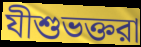
যীশুভক্তরা